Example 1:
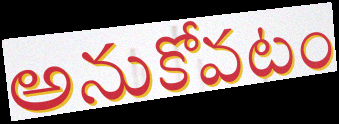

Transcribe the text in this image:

అనుకోవటం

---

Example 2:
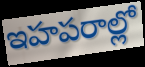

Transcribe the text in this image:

ఇహపరాల్లో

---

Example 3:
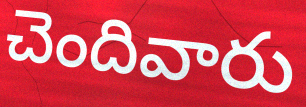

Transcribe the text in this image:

చెందివారు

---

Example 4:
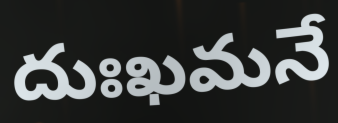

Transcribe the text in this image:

దుఃఖమనే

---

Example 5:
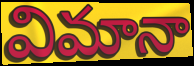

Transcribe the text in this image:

విమానా